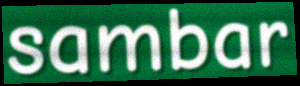
sambar